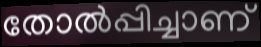
തോൽപ്പിച്ചാണ്